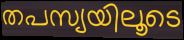
തപസ്യയിലൂടെ